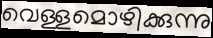
വെള്ളമൊഴിക്കുന്നു